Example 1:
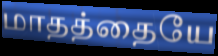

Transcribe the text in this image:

மாதத்தையே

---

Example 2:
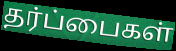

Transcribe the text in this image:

தர்ப்பைகள்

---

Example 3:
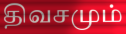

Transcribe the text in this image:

திவசமும்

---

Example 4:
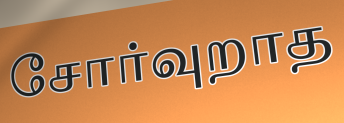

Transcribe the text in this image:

சோர்வுறாத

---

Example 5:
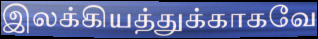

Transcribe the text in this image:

இலக்கியத்துக்காகவே